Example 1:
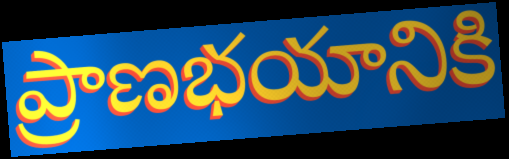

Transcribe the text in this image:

ప్రాణభయానికి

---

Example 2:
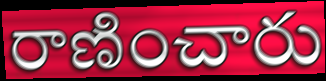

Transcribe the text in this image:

రాణించారు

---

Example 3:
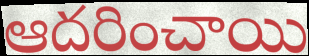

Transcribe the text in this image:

ఆదరించాయి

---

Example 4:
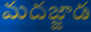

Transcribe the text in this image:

మదజ్జాడ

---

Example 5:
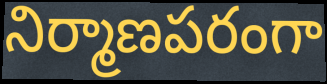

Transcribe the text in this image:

నిర్మాణపరంగా